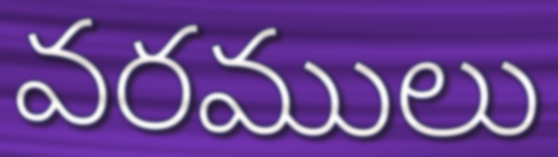
వరములు